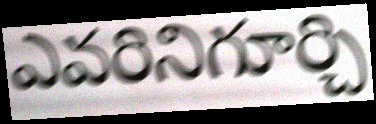
ఎవరినిగూర్చి